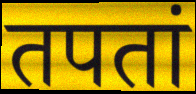
तपतां